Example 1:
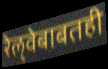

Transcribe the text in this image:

रेल्वेबाबतही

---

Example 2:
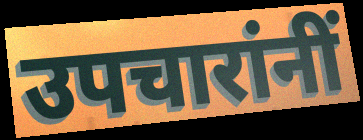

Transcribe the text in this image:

उपचारांनीं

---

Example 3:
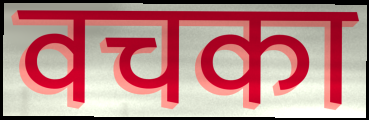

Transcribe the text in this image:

वचका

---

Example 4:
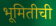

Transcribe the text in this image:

भूमितीची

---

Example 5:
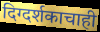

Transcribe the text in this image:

दिग्दर्शकाचाही